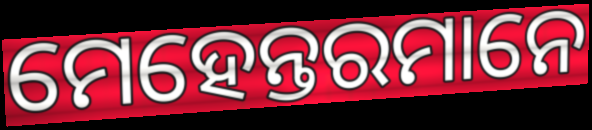
ମେହେନ୍ତରମାନେ